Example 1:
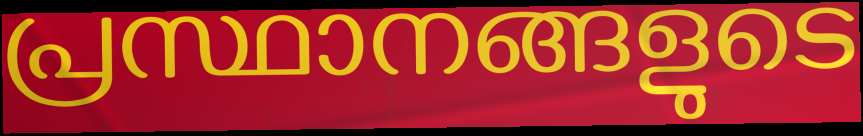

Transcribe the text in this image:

പ്രസ്ഥാനങ്ങളുടെ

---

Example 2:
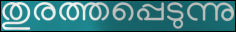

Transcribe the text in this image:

തുരത്തപ്പെടുന്നു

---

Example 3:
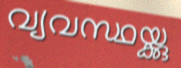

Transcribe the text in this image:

വ്യവസ്ഥയ്ക്കു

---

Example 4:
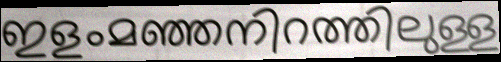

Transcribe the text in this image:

ഇളംമഞ്ഞനിറത്തിലുള്ള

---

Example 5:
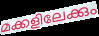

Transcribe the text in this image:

മക്കളിലേക്കും